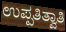
ಉಪ್ಪತಿತ್ವಾತಿ